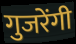
गुजरेंगी